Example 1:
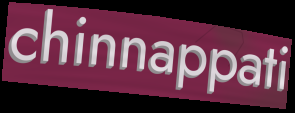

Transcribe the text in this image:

chinnappati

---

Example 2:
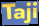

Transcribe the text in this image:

Taji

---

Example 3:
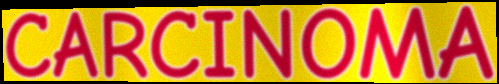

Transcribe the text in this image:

CARCINOMA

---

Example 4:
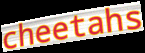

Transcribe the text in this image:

cheetahs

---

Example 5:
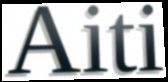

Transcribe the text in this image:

Aiti